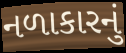
નળાકારનું